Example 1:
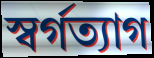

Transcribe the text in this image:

স্বর্গত্যাগ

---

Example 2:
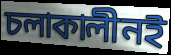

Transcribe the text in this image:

চলাকালীনই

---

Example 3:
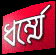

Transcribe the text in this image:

ধর্ম্মে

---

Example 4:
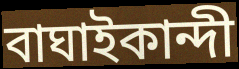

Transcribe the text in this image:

বাঘাইকান্দী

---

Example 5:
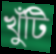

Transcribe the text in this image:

খুঁটি